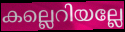
കല്ലെറിയല്ലേ